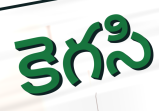
కెగసి